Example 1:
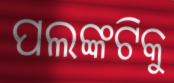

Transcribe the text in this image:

ପଲଙ୍କଟିକୁ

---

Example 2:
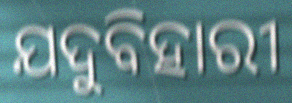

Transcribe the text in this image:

ଯଦୁବିହାରୀ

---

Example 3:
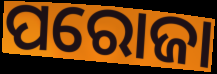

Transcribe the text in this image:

ପରୋଜା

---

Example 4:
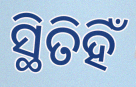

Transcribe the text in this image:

ସ୍ଥିତିହିଁ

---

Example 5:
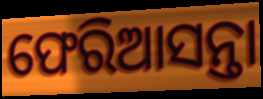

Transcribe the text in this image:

ଫେରିଆସନ୍ତା